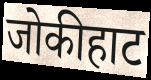
जोकीहाट